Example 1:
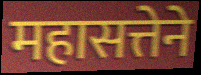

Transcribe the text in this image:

महासत्तेने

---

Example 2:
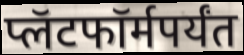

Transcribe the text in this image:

प्लॅटफॉर्मपर्यंत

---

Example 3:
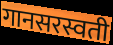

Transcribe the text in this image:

गानसरस्वती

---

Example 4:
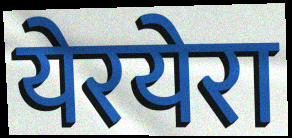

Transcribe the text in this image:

येरयेरा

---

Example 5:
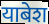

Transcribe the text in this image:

याबेश